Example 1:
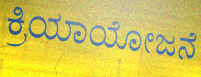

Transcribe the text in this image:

ಕ್ರಿಯಾಯೋಜನೆ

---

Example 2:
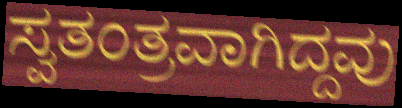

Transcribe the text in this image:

ಸ್ವತಂತ್ರವಾಗಿದ್ದವು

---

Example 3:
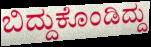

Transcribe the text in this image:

ಬಿದ್ದುಕೊಂಡಿದ್ದು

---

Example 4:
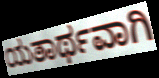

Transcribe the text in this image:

ಯತಾರ್ಥವಾಗಿ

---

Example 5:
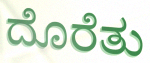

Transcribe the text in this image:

ದೊರೆತು